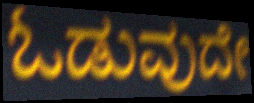
ಓಡುವುದೇ